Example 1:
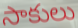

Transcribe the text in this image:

సాకులు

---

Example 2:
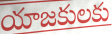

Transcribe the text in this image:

యాజకులకు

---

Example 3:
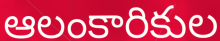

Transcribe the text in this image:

ఆలంకారికుల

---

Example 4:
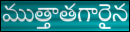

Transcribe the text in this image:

ముత్తాతగారైన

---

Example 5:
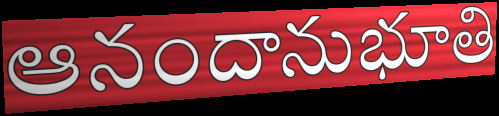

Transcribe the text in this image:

ఆనందానుభూతి